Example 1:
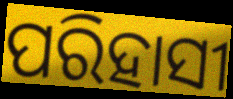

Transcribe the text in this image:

ପରିହାସୀ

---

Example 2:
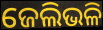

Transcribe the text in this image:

ଜେଲିଭଳି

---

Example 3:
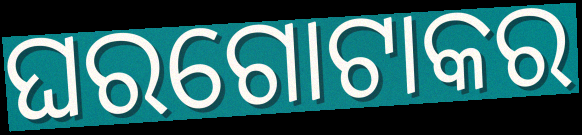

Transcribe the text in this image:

ଘରଗୋଟାକର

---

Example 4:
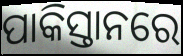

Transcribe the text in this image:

ପାକିସ୍ତାନରେ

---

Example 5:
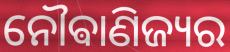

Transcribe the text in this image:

ନୌଵାଣିଜ୍ୟର